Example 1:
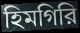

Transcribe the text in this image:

হিমগিরি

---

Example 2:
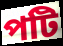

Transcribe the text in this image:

পটি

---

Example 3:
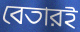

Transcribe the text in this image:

বেতারই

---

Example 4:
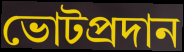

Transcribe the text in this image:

ভোটপ্রদান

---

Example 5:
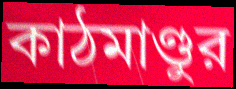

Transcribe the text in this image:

কাঠমাণ্ডুর